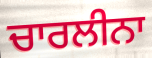
ਚਾਰਲੀਨਾ